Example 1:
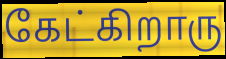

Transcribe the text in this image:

கேட்கிறாரு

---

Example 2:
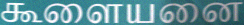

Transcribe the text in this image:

கூளையனை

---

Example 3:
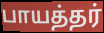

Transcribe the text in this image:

பாயத்தர்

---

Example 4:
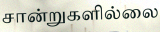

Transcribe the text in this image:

சான்றுகளில்லை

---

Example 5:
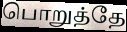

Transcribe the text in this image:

பொறுத்தே